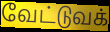
வேட்டுவக்